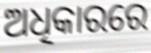
ଅଧିକାରରେ